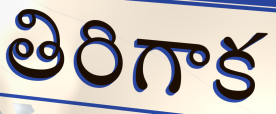
తిరిగాక